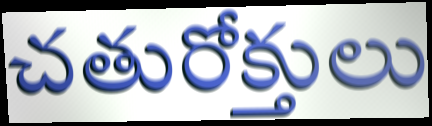
చతురోక్తులు